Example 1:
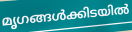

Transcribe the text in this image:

മൃഗങ്ങൾക്കിടയിൽ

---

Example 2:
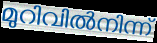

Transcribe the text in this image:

മുറിവിൽനിന്ന്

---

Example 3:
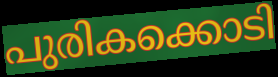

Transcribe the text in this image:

പുരികക്കൊടി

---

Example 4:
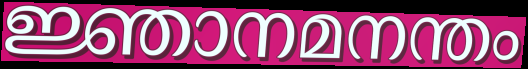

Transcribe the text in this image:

ജ്ഞാനമനന്തം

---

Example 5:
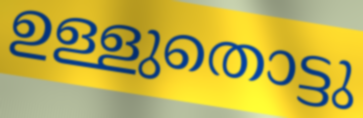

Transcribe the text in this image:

ഉള്ളുതൊട്ടു